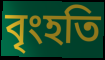
বৃংহতি